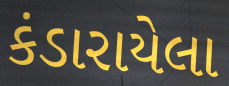
કંડારાયેલા